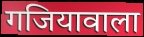
गजियावाला